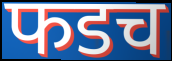
फडच